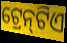
ଟ୍ରେନ୍‌ଟିଏ